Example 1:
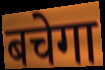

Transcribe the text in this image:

बचेगा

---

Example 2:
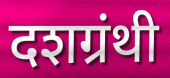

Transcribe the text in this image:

दशग्रंथी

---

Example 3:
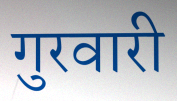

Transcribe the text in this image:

गुरवारी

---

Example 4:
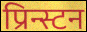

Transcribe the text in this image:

प्रिन्स्टन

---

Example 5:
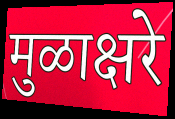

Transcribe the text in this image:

मुळाक्षरे